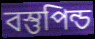
বস্তুপিন্ড